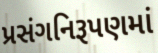
પ્રસંગનિરૂપણમાં